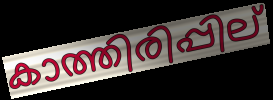
കാത്തിരിപ്പില്